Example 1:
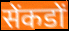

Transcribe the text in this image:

सेंकडों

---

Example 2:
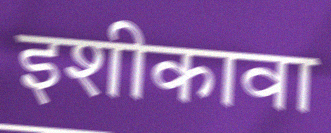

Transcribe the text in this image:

इशीकावा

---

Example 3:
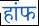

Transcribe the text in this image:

हांफ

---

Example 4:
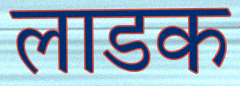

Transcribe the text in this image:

लाडक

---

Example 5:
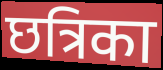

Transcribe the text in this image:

छत्रिका